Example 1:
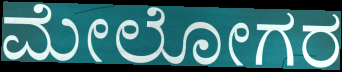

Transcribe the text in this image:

ಮೇಲೋಗರ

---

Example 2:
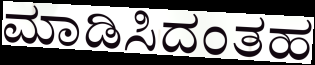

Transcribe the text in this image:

ಮಾಡಿಸಿದಂತಹ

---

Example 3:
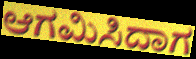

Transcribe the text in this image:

ಆಗಮಿಸಿದಾಗ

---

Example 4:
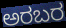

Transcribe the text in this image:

ಅರಬರ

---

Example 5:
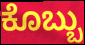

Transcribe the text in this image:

ಕೊಬ್ಬು